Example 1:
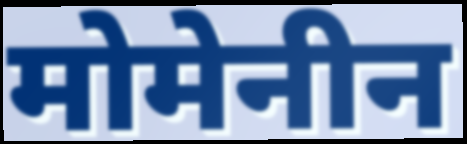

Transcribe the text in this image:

मोमेनीन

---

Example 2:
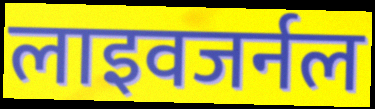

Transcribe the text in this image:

लाइवजर्नल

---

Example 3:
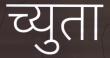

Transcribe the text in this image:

च्युता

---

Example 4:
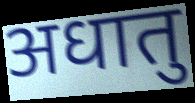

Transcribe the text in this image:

अधातु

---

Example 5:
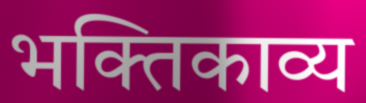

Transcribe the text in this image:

भक्तिकाव्य